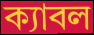
ক্যাবল